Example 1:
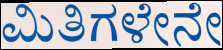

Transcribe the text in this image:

ಮಿತಿಗಳೇನೇ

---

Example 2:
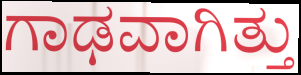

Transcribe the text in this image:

ಗಾಢವಾಗಿತ್ತು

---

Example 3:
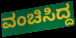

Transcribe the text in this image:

ವಂಚಿಸಿದ್ದ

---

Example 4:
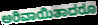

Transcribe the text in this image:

ಅರಿವಾಯಿತಾದರೂ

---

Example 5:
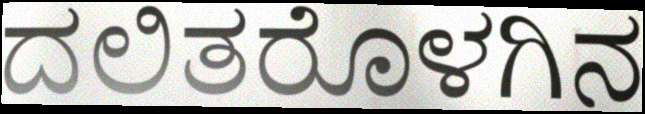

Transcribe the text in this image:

ದಲಿತರೊಳಗಿನ